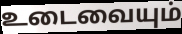
உடைவையும்